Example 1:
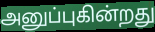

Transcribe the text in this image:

அனுப்புகின்றது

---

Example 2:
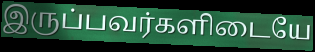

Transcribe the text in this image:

இருப்பவர்களிடையே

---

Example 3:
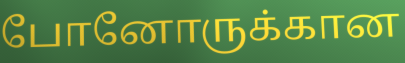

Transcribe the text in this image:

போனோருக்கான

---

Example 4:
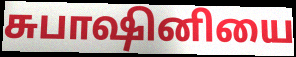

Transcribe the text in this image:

சுபாஷினியை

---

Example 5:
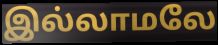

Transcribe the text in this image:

இல்லாமலே